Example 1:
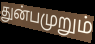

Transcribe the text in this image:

துன்பமுறும்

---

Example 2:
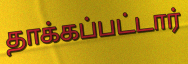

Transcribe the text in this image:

தாக்கப்பட்டார்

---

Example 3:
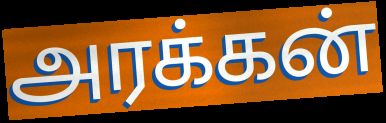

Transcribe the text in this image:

அரக்கன்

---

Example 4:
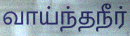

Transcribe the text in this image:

வாய்ந்தநீர்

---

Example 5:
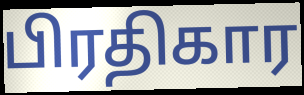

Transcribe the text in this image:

பிரதிகார